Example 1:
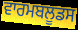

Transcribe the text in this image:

ਵਾਰਮਬਲੂਡਸ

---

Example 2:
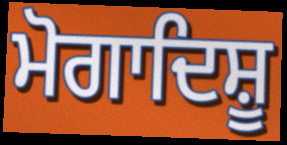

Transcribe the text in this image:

ਮੋਗਾਦਿਸ਼ੂ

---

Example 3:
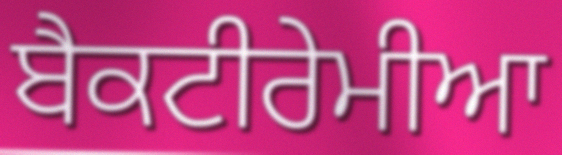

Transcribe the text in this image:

ਬੈਕਟੀਰੇਮੀਆ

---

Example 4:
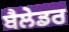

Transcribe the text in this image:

ਬੈਲੇਡਰ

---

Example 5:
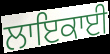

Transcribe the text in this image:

ਲਾਇਕਾਈ